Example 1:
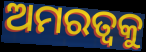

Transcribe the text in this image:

ଅମରତ୍ୱକୁ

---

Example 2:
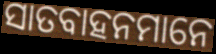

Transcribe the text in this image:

ସାତବାହନମାନେ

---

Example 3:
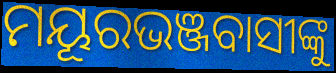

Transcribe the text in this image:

ମୟୂରଭଞ୍ଜବାସୀଙ୍କୁ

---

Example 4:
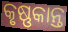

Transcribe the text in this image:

କୃଷ୍ଣକାନ୍ତ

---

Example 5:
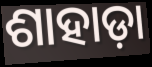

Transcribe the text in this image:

ଶାହାଡ଼ା